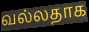
வல்லதாக